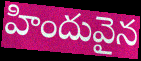
హిందువైన